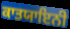
ਕਾਤਯਾਇਨੀ